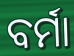
ବର୍ମା